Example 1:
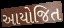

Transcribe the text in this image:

આયોજિત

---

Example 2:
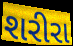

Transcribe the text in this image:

શરીરા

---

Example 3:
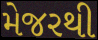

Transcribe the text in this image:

મેજરથી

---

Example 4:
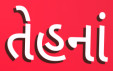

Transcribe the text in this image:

તેહનાં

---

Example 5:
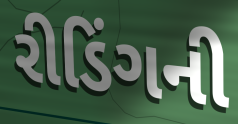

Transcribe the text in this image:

રીડિંગની